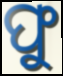
ଫୁ